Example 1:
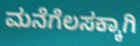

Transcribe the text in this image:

ಮನೆಗೆಲಸಕ್ಕಾಗಿ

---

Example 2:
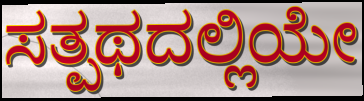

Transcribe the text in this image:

ಸತ್ಪಥದಲ್ಲಿಯೇ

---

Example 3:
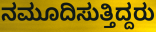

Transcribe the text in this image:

ನಮೂದಿಸುತ್ತಿದ್ದರು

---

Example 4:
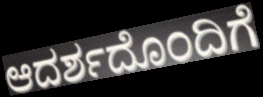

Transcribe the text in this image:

ಆದರ್ಶದೊಂದಿಗೆ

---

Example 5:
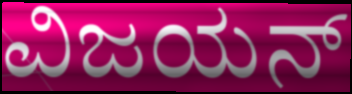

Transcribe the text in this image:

ವಿಜಯನ್